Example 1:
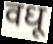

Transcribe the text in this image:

वधू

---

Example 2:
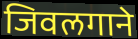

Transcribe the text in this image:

जिवलगाने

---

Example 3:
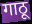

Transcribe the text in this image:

गाठू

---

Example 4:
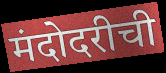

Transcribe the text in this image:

मंदोदरीची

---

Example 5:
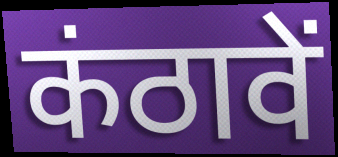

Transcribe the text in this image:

कंठावें